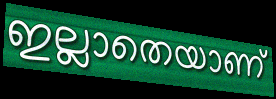
ഇല്ലാതെയാണ്